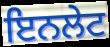
ਇਨਲੇਟ